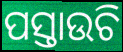
ପସ୍ତାଉଚି